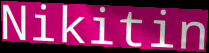
Nikitin